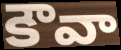
కౌవా